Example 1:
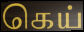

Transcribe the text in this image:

கெய்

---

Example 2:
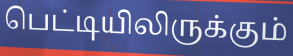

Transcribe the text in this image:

பெட்டியிலிருக்கும்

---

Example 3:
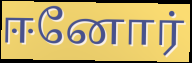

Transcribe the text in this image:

ஈனோர்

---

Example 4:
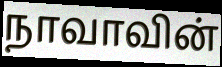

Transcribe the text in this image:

நாவாவின்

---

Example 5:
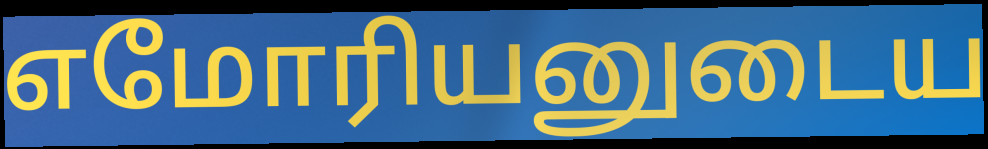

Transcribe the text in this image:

எமோரியனுடைய